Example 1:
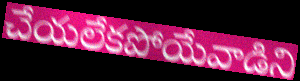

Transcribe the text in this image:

చేయలేకపోయేవాడిని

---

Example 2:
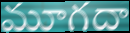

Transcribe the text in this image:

మూగదా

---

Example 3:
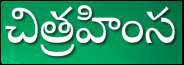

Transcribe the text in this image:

చిత్రహింస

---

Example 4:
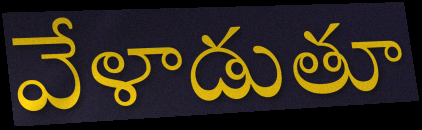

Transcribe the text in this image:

వేళాడుతూ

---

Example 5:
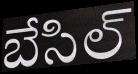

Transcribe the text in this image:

బేసిల్